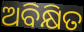
ଅବିକ୍ଷିତ